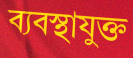
ব্যবস্থাযুক্ত